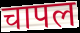
चापल